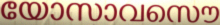
യോസാവസൌ